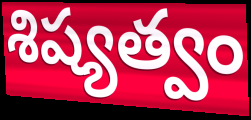
శిష్యత్వం